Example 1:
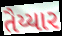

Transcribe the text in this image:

તૈય્યાર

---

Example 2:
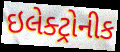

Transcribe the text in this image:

ઇલેક્ટ્રોનીક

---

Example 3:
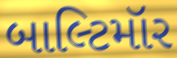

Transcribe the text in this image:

બાલ્ટિમૉર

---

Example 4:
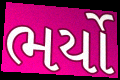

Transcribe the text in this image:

ભર્યો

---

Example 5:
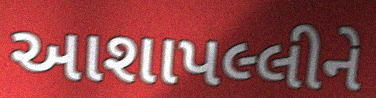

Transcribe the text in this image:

આશાપલ્લીને